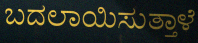
ಬದಲಾಯಿಸುತ್ತಾಳೆ